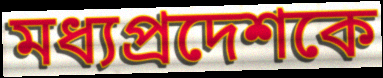
মধ্যপ্রদেশকে